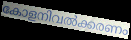
കോളനിവൽക്കരണം